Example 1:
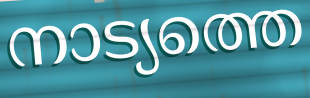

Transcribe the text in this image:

നാട്യത്തെ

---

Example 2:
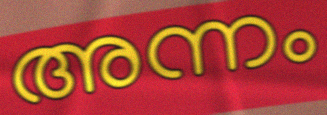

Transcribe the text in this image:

അന്നം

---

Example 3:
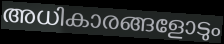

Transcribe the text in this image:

അധികാരങ്ങളോടും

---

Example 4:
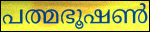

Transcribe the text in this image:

പത്മഭൂഷൺ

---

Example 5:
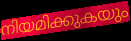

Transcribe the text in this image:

നിയമിക്കുകയും